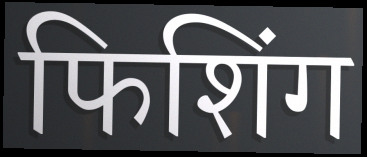
फिशिंग